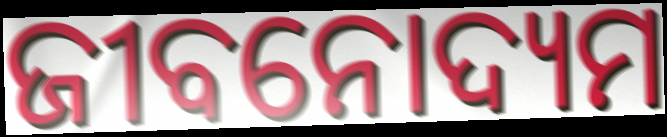
ଜୀବନୋଦ୍ୟମ